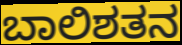
ಬಾಲಿಶತನ